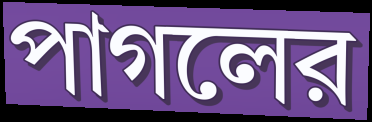
পাগলের